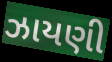
ઝાયણી